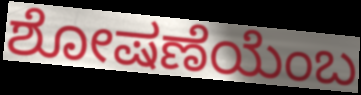
ಶೋಷಣೆಯೆಂಬ